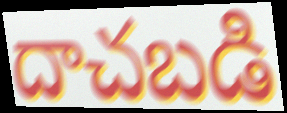
దాచబడి